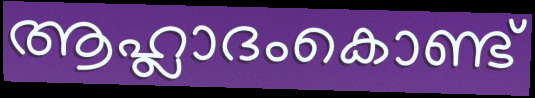
ആഹ്ലാദംകൊണ്ട്